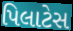
પિલાટેસ